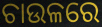
ଚାଉଳରେ